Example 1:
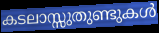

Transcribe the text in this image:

കടലാസ്സുതുണ്ടുകൾ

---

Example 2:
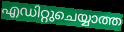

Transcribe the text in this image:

എഡിറ്റുചെയ്യാത്ത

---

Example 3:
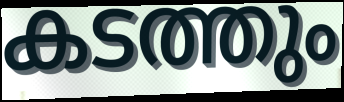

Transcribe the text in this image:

കടത്തും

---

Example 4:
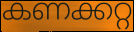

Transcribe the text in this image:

കണക്കറ്റ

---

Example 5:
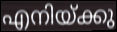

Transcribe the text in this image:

എനിയ്ക്കു